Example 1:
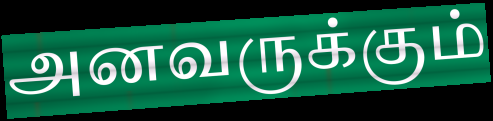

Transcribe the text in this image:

அனவருக்கும்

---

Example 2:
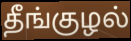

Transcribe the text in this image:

தீங்குழல்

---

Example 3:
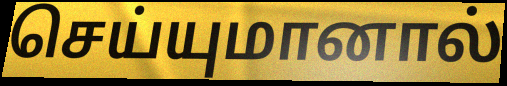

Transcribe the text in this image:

செய்யுமானால்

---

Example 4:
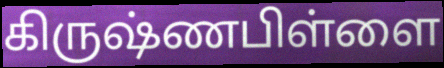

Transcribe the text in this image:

கிருஷ்ணபிள்ளை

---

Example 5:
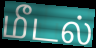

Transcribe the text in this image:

மீடல்